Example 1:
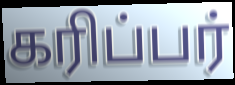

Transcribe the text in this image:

கரிப்பர்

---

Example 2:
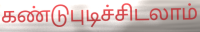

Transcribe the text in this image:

கண்டுபுடிச்சிடலாம்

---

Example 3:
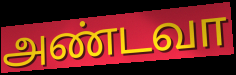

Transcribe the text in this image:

அண்டவா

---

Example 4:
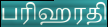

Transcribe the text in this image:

பரிஹரதி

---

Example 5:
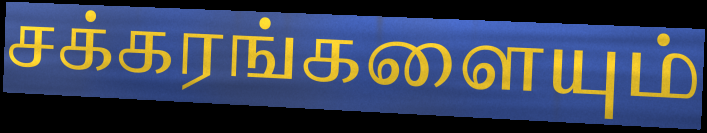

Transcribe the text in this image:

சக்கரங்களையும்